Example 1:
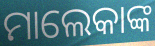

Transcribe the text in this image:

ମାଲେକାଙ୍କ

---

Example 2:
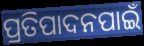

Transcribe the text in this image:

ପ୍ରତିପାଦନପାଇଁ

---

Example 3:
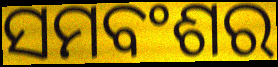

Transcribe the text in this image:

ସମବଂଶର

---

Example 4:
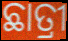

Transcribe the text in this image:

ଛାତ୍ରୀ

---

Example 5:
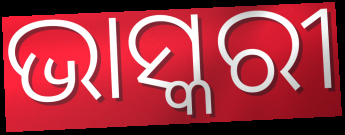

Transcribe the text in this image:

ଭାସ୍କରୀ